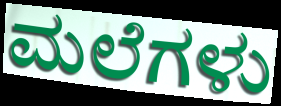
ಮಲೆಗಳು